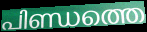
പിണ്ഡത്തെ